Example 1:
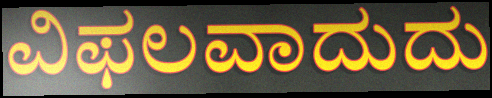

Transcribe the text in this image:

ವಿಫಲವಾದುದು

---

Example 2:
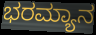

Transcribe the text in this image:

ಭರಮ್ಯಾನ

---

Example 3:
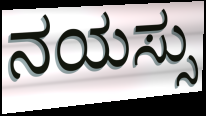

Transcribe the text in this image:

ನಯಸ್ಸು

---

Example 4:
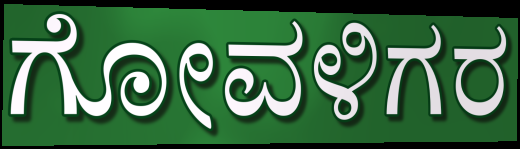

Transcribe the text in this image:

ಗೋವಳಿಗರ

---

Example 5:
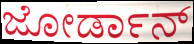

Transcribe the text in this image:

ಜೋರ್ಡಾನ್